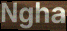
Ngha